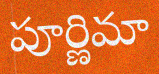
పూర్ణిమా